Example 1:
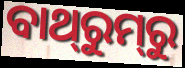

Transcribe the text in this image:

ବାଥ୍‌ରୁମ୍‌ରୁ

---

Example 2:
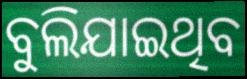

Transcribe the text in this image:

ବୁଲିଯାଇଥିବ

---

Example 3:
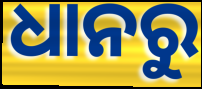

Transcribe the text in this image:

ଧାନରୁ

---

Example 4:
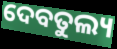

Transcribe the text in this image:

ଦେବତୁଲ୍ୟ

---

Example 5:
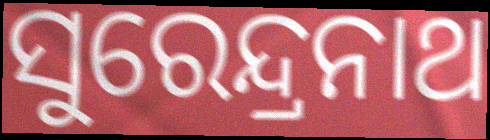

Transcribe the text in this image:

ସୁରେନ୍ଦ୍ରନାଥ